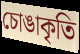
চোঙাকৃতি